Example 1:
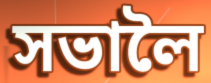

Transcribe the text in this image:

সভালৈ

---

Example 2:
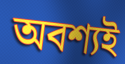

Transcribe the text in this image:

অবশ্যই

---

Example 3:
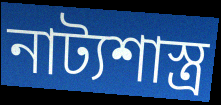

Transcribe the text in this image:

নাট্যশাস্ত্ৰ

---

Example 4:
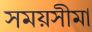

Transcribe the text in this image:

সময়সীমা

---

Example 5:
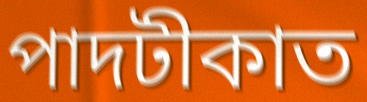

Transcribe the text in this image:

পাদটীকাত